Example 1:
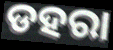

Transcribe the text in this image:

ଡହରା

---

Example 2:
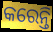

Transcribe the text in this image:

କରେନ୍ତି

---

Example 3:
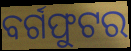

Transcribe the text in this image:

ବର୍ଗଫୁଟର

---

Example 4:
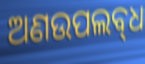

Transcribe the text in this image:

ଅଣଉପଲବ୍‌ଧ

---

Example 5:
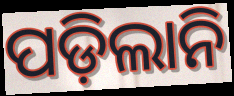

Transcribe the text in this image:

ପଡ଼ିଲାନି